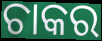
ଚାକର